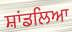
ਸ਼ਾਂਡਲਿਆ